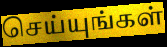
செய்யுங்கள்